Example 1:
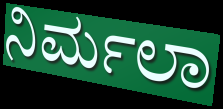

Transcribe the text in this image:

ನಿರ್ಮಲಾ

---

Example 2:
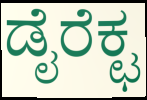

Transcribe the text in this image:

ಡೈರೆಕ್ಟ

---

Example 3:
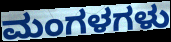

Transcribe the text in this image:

ಮಂಗಳಗಳು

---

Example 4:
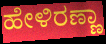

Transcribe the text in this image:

ಹೇಳಿರಣ್ಣಾ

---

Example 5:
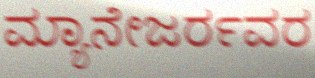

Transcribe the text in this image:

ಮ್ಯಾನೇಜರ್ರವರ